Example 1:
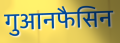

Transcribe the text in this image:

गुआनफैसिन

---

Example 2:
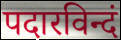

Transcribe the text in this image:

पदारविन्दं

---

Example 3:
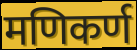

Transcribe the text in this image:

मणिकर्ण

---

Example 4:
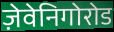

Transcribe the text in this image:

ज़ेवेनिगोरोड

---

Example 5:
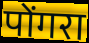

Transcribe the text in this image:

पोंगरा